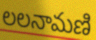
లలనామణి